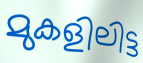
മുകളിലിട്ട